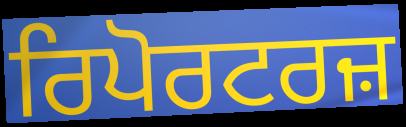
ਰਿਪੋਰਟਰਜ਼